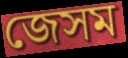
জেসম